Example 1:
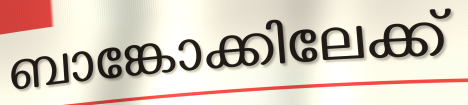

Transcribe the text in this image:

ബാങ്കോക്കിലേക്ക്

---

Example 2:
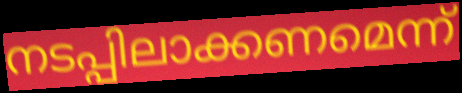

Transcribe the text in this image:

നടപ്പിലാക്കണമെന്ന്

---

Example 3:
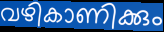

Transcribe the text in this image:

വഴികാണിക്കും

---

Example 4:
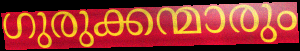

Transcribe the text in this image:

ഗുരുക്കന്മാരും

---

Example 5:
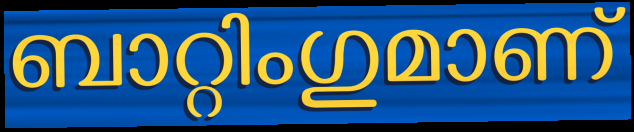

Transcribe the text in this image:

ബാറ്റിംഗുമാണ്